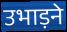
उभाड़ने